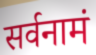
सर्वनामं